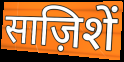
साज़िशें